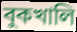
বুকখালি